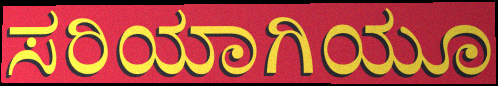
ಸರಿಯಾಗಿಯೂ